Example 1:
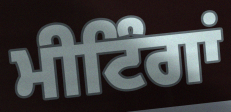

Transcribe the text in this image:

ਮੀਟਿੰਗਾਂ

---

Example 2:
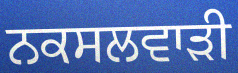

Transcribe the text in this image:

ਨਕਸਲਵਾੜੀ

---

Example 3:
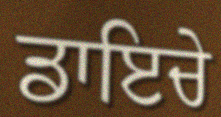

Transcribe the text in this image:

ਡਾਇਚੇ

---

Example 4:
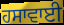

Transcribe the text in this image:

ਹਸਾਵਾਈ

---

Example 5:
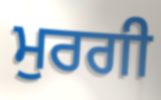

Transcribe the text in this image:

ਮੁਰਗੀ